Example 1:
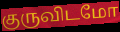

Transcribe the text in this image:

குருவிடமோ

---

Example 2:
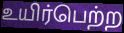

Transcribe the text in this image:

உயிர்பெற்ற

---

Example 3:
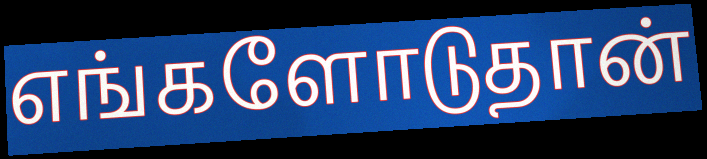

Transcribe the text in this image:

எங்களோடுதான்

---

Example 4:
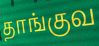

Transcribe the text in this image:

தாங்குவ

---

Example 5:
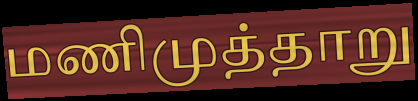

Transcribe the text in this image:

மணிமுத்தாறு